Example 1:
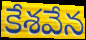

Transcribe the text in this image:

కేశవేన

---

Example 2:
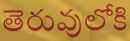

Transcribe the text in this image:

తెరువులోకి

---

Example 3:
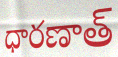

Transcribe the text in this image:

ధారణాత్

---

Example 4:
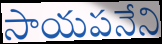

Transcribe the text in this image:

సాయపనేని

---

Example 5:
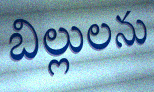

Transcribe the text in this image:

బిల్లులను